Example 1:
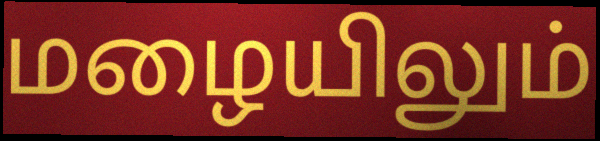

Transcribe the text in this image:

மழையிலும்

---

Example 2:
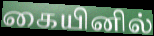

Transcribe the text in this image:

கையினில்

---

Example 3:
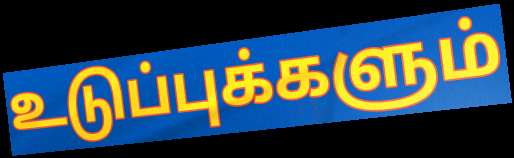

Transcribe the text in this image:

உடுப்புக்களும்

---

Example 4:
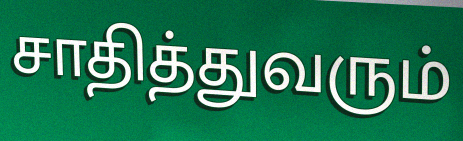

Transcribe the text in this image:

சாதித்துவரும்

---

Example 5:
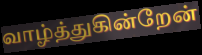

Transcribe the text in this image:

வாழ்த்துகின்றேன்